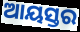
ଆୟସ୍ତର